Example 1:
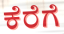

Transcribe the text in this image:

ಕೆರೆಗೆ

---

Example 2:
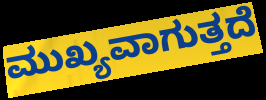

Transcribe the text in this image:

ಮುಖ್ಯವಾಗುತ್ತದೆ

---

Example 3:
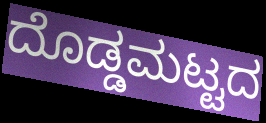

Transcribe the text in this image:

ದೊಡ್ಡಮಟ್ಟದ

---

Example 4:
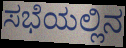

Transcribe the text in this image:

ಸಭೆಯಲ್ಲಿನ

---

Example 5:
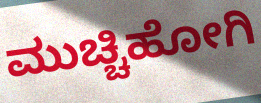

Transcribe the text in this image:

ಮುಚ್ಚಿಹೋಗಿ